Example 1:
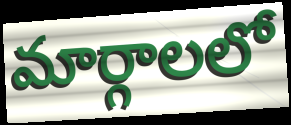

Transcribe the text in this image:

మార్గాలలో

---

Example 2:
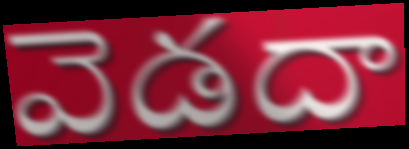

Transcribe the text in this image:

వెడదా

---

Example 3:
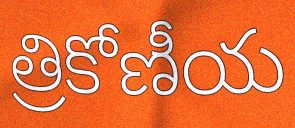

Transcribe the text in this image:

త్రికోణీయ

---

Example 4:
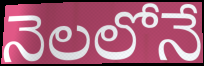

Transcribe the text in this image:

నెలలోనే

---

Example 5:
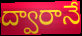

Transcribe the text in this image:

ద్వారానే